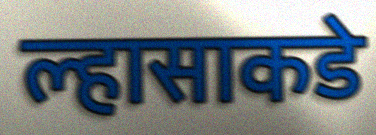
ल्हासाकडे